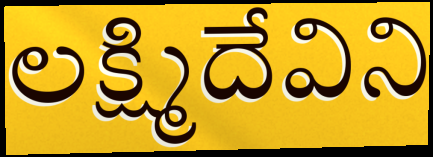
లక్ష్మిదేవిని